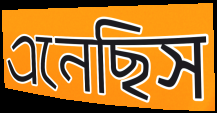
এনেছিস